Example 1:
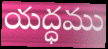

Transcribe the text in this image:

యద్ధము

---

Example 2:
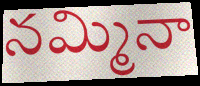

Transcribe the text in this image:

నమ్మినా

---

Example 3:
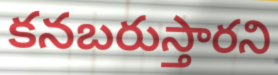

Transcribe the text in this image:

కనబరుస్తారని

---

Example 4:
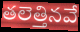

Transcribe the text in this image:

తలెత్తినవే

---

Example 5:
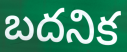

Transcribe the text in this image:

బదనిక